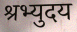
श्रभ्युदय